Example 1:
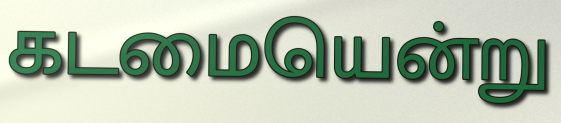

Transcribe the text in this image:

கடமையென்று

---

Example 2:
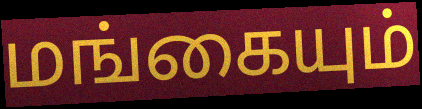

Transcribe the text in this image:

மங்கையும்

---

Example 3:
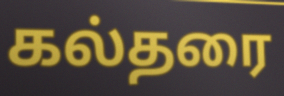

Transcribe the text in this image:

கல்தரை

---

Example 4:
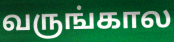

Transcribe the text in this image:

வருங்கால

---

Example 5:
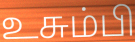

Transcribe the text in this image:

உசும்பி